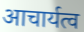
आचार्यत्व